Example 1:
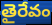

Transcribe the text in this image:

తైరేవం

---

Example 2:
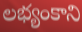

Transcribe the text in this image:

లభ్యంకాని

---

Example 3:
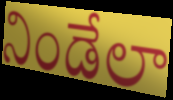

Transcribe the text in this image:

నిండేలా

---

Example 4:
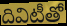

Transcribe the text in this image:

దివిటీతో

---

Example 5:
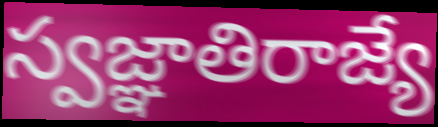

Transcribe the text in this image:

స్వజ్ఞాతిరాజ్యే